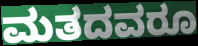
ಮತದವರೂ